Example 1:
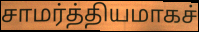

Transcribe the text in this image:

சாமர்த்தியமாகச்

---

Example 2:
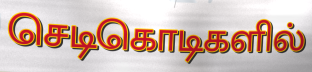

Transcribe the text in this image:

செடிகொடிகளில்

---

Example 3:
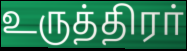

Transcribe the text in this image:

உருத்திரர்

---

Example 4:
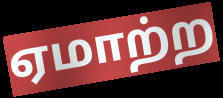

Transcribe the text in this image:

ஏமாற்ற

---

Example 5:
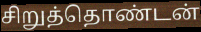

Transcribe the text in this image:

சிறுத்தொண்டன்